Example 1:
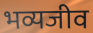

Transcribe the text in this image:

भव्यजीव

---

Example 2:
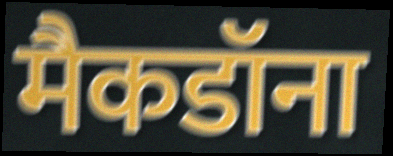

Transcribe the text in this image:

मैकडॉना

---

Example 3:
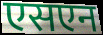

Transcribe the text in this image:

एसएन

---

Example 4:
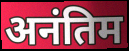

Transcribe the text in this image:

अनंतिम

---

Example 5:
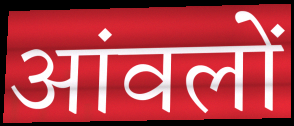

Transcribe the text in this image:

आंवलों